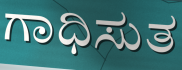
ಗಾಧಿಸುತ